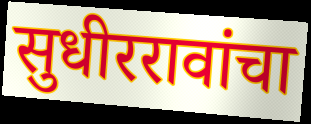
सुधीररावांचा